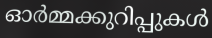
ഓർമ്മക്കുറിപ്പുകൾ